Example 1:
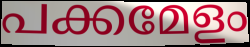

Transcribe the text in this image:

പക്കമേളം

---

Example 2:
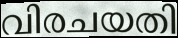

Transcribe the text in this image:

വിരചയതി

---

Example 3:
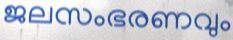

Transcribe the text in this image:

ജലസംഭരണവും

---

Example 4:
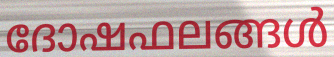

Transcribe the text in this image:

ദോഷഫലങ്ങൾ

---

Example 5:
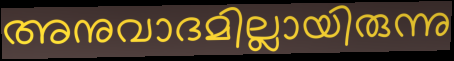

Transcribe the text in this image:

അനുവാദമില്ലായിരുന്നു